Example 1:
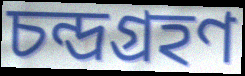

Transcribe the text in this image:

চন্দ্রগ্রহণ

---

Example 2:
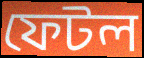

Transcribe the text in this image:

ফেটল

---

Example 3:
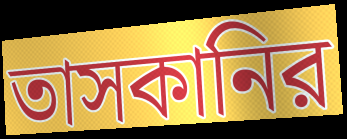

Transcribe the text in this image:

তাসকানির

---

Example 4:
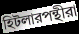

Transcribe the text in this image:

হিটলারপন্থীরা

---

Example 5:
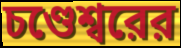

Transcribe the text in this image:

চণ্ডেশ্বরের